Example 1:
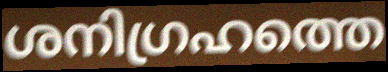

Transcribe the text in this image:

ശനിഗ്രഹത്തെ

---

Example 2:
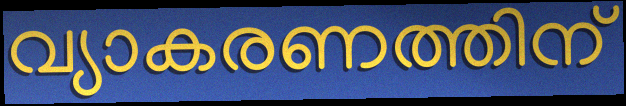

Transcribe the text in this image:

വ്യാകരണത്തിന്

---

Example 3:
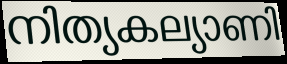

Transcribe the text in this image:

നിത്യകല്യാണി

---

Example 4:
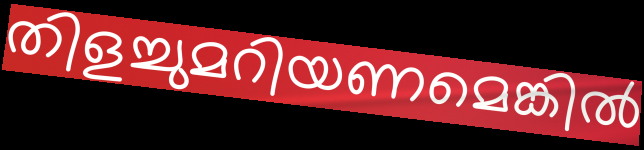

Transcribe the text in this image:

തിളച്ചുമറിയണമെങ്കിൽ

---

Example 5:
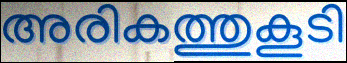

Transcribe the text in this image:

അരികത്തുകൂടി